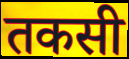
तकसी